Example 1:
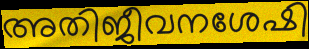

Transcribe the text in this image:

അതിജീവനശേഷി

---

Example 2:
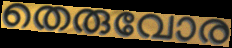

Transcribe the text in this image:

തെരുവോര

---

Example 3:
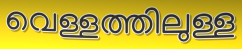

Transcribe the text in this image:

വെള്ളത്തിലുള്ള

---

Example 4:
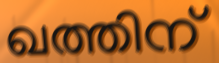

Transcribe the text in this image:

ഖത്തിന്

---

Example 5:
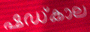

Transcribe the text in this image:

ഷഡ്കാല